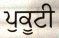
ਪੁਕੂਟੀ